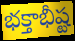
భక్తాభీష్ట